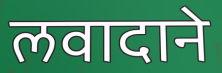
लवादाने